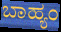
ಬಾಹ್ಯಂ